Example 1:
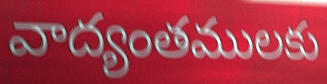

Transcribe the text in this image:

వాద్యంతములకు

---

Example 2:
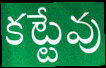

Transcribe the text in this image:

కట్టేవు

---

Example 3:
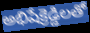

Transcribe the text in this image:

అభిషేక్రెడ్డిలతో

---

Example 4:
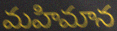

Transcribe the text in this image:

మహిమాన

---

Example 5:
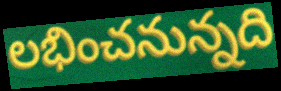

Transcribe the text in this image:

లభించనున్నది